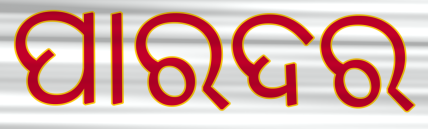
ପାରଦର